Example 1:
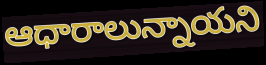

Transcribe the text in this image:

ఆధారాలున్నాయని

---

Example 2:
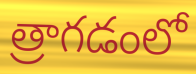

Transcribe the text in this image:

త్రాగడంలో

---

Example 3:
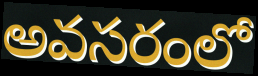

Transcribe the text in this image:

అవసరంలో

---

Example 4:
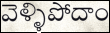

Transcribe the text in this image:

వెళ్ళిపోదాం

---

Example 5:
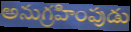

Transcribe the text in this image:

అనుగ్రహింపుడు